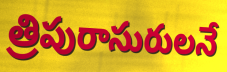
త్రిపురాసురులనే